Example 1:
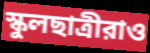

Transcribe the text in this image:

স্কুলছাত্রীরাও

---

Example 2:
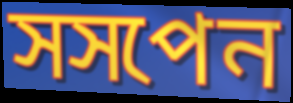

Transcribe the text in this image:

সসপেন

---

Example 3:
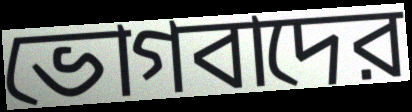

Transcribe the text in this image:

ভোগবাদের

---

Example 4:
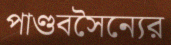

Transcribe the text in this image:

পাণ্ডবসৈন্যের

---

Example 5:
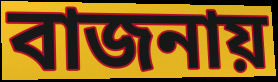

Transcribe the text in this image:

বাজনায়